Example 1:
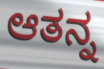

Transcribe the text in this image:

ಆತನ್ನ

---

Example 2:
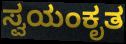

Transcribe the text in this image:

ಸ್ವಯಂಕೃತ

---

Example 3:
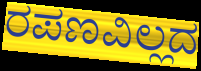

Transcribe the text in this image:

ರಪಣವಿಲ್ಲದ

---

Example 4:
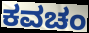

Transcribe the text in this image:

ಕವಚಂ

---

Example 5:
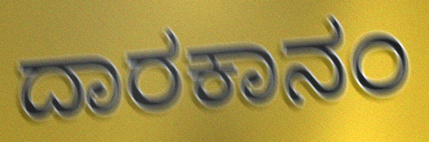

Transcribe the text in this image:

ದಾರಕಾನಂ